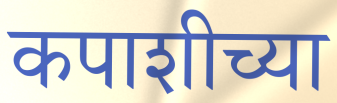
कपाशीच्या